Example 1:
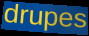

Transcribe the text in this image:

drupes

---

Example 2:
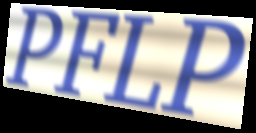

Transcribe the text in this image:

PFLP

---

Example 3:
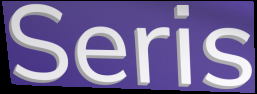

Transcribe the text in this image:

Seris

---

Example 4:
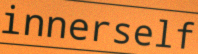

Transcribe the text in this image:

innerself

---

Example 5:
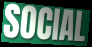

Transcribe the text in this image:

SOCIAL